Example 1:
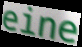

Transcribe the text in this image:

eine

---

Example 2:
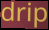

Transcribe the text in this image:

drip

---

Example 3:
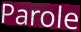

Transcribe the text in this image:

Parole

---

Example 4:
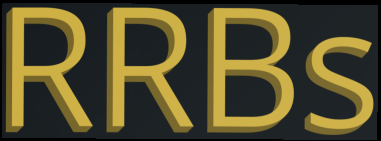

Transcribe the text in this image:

RRBs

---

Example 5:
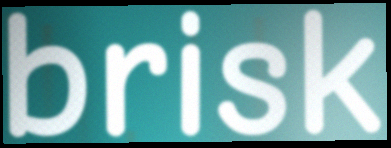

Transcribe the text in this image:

brisk